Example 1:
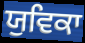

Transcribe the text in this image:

ਯੁਵਿਕਾ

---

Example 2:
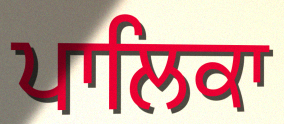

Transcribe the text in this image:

ਪਾਲਿਕਾ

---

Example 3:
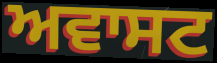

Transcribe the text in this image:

ਅਵਾਸਟ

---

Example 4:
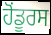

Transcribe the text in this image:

ਹੋਂਡੂਰਸ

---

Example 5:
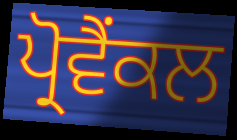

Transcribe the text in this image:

ਪ੍ਰੋਵੈਂਕਲ